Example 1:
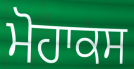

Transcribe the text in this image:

ਮੋਹਾਕਸ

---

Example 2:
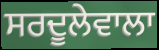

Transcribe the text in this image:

ਸਰਦੂਲੇਵਾਲਾ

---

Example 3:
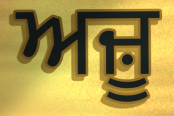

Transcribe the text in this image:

ਅਜ਼ੂ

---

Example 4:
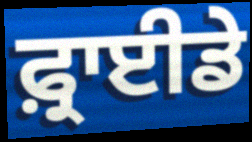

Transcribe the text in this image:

ਫ਼੍ਰਾਈਡੇ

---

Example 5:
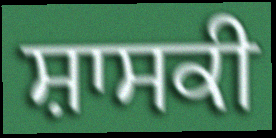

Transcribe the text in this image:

ਸ਼ਾਸਕੀ